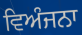
ਵਿਅੰਜਨਾ